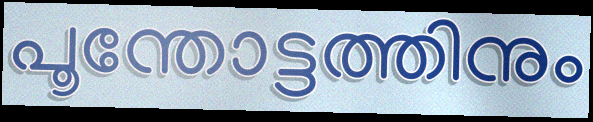
പൂന്തോട്ടത്തിനും